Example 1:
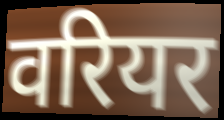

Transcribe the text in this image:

वरियर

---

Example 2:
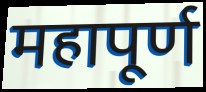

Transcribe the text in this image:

महापूर्ण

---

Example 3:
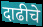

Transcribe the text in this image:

दाढीचे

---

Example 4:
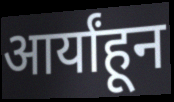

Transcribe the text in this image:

आर्यांहून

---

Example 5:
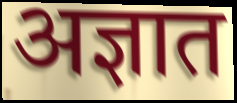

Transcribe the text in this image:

अज्ञात